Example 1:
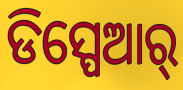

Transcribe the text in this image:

ଡିସ୍ପେଆର୍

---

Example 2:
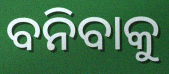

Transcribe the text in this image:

ବନିବାକୁ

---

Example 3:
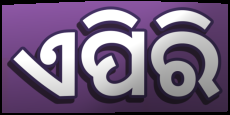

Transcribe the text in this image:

ଏପିରି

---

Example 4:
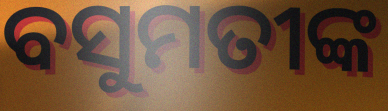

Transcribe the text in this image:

ବସୁମତୀଙ୍କ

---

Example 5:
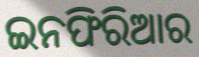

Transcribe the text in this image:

ଇନଫିରିଆର